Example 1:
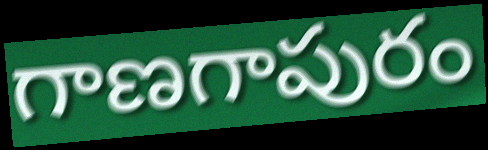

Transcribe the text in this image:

గాణగాపురం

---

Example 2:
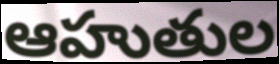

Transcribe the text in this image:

ఆహుతుల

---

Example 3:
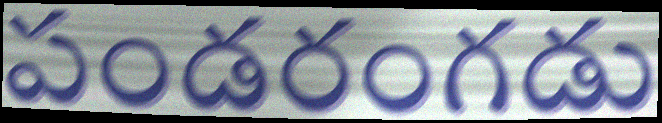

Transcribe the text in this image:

పండరంగడు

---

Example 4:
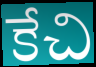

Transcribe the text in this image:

కేచి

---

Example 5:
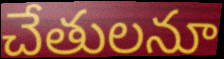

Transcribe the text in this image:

చేతులనూ